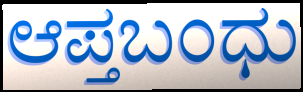
ಆಪ್ತಬಂಧು